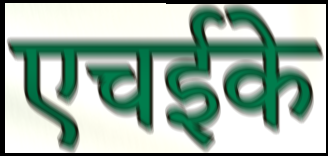
एचईके